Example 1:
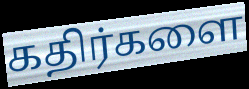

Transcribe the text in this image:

கதிர்களை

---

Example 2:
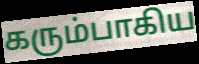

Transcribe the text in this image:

கரும்பாகிய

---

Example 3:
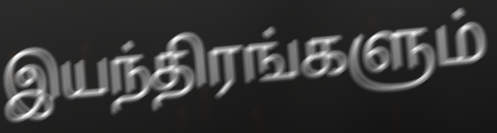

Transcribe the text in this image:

இயந்திரங்களும்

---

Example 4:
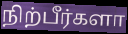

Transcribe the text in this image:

நிற்பீர்களா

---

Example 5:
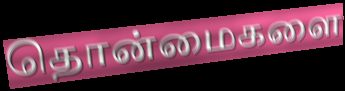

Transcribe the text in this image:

தொன்மைகளை